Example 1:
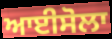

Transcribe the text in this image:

ਆਈਸੋਲਾ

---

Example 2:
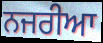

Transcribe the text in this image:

ਨਜਰੀਆ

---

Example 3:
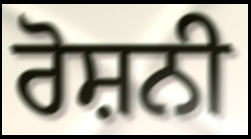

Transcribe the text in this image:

ਰੋਸ਼ਨੀ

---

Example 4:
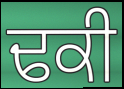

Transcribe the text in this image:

ਢਕੀ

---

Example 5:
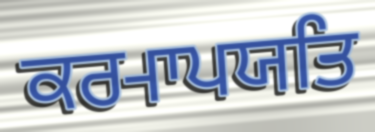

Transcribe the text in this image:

ਕਰ੍ਮਾਪਯਤਿ